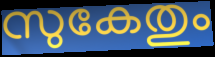
സുകേതും